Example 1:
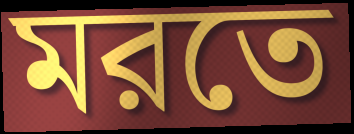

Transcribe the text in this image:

মরতে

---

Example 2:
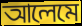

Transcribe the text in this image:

আলেমে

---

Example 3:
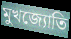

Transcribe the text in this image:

মুখজ্যোতি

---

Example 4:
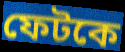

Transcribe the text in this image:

ফেটকে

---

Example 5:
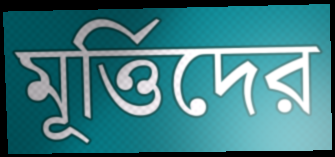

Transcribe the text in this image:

মূর্ত্তিদের